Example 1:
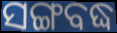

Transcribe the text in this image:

ସଙ୍ଗବଦ୍ଧ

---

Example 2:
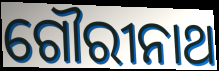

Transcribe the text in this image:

ଗୌରୀନାଥ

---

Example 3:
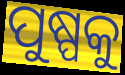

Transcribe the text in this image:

ପୁଷ୍ପକୁ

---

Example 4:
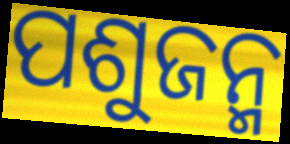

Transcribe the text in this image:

ପଶୁଜନ୍ମ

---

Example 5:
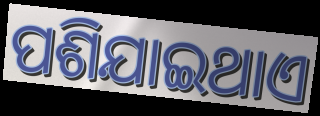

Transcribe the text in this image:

ପଶିଯାଇଥାଏ